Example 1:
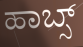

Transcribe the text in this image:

ಹಾಬ್ಸ್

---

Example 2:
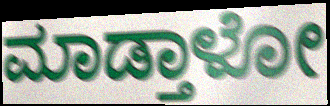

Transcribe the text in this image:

ಮಾಡ್ತಾಳೋ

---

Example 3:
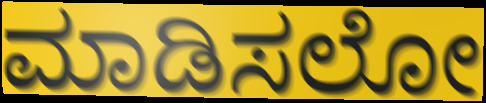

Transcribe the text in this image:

ಮಾಡಿಸಲೋ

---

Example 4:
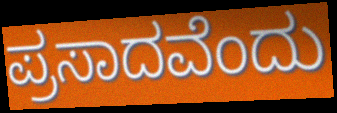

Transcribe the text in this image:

ಪ್ರಸಾದವೆಂದು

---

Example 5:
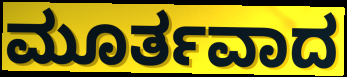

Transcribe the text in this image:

ಮೂರ್ತವಾದ